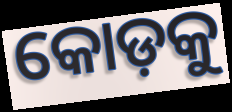
କୋଡ଼କୁ